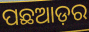
ପଛଆଡ଼ର